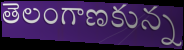
తెలంగాణకున్న